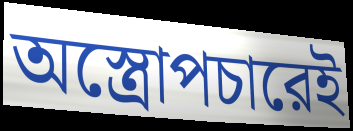
অস্ত্রোপচারেই